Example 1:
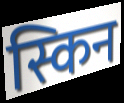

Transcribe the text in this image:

स्किन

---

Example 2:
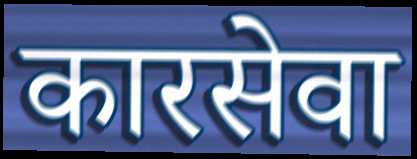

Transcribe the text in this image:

कारसेवा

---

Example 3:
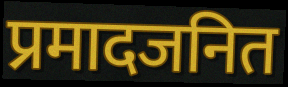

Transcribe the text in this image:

प्रमादजनित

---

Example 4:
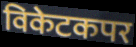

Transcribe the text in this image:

विकेटकपर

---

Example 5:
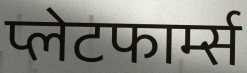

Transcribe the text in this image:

प्लेटफार्म्स